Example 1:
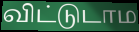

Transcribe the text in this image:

விட்டுடாம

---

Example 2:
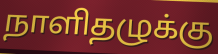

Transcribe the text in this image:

நாளிதழுக்கு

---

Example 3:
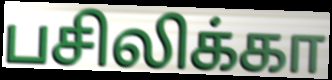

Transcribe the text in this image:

பசிலிக்கா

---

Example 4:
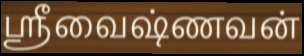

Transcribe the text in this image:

ஸ்ரீவைஷ்ணவன்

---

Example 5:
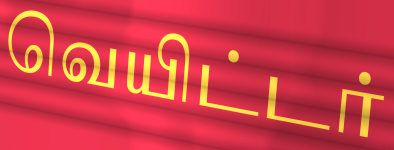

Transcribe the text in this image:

வெயிட்டர்